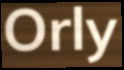
Orly